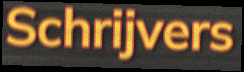
Schrijvers